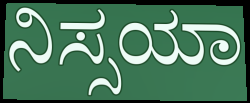
ನಿಸ್ಸಯಾ